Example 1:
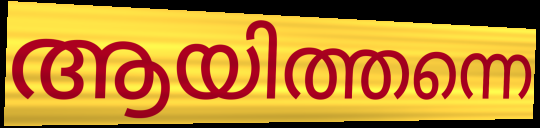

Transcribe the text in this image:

ആയിത്തന്നെ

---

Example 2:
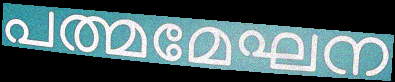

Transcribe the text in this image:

പത്മമേഘന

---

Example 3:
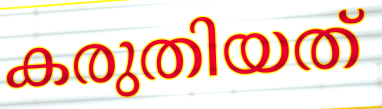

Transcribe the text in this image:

കരുതിയത്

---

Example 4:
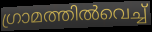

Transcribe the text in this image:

ഗ്രാമത്തിൽവെച്ച്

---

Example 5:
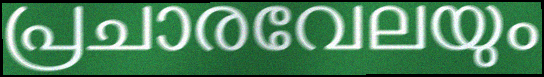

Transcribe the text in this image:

പ്രചാരവേലയും